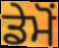
ਡੇਮੋਂ